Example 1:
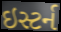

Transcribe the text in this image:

ઇસ્ટર્ન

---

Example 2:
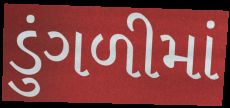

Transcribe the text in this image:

ડુંગળીમાં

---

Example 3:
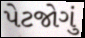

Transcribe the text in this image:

પેટજોગું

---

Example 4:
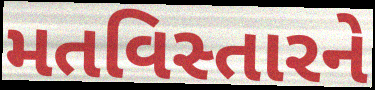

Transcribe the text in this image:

મતવિસ્તારને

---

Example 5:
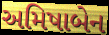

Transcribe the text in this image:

અમિષાબેન